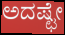
ಅದಷ್ಟೇ